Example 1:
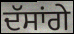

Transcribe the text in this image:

ਦੱਸਾਂਗੇ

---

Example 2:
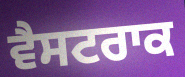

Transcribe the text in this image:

ਵੈਸਟਰਾਕ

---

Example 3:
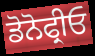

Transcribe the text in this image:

ਡੋਨੋਫ੍ਰੀਓ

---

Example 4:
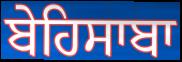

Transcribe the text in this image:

ਬੇਹਿਸਾਬਾ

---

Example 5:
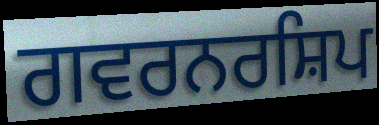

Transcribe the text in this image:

ਗਵਰਨਰਸ਼ਿਪ